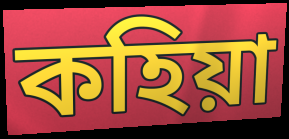
কহিয়া